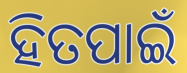
ହିତପାଇଁ